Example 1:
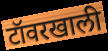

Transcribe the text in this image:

टॉवरखाली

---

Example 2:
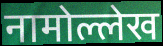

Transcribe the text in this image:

नामोल्लेख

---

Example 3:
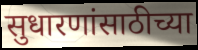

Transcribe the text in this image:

सुधारणांसाठीच्या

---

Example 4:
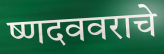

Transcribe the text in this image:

ष्णदववराचे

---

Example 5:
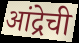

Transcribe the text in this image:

आंद्रेची